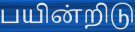
பயின்றிடு